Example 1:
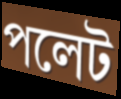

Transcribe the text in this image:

পলেট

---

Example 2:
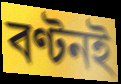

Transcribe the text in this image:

বণ্টনই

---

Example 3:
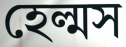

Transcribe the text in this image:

হেল্মস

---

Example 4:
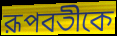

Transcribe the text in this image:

রূপবতীকে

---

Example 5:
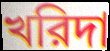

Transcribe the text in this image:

খরিদা